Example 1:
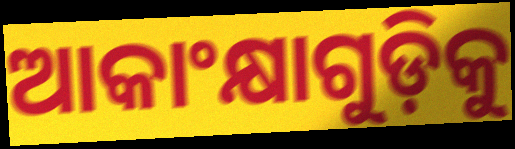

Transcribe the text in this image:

ଆକାଂକ୍ଷାଗୁଡ଼ିକୁ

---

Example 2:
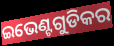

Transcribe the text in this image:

ଇଭେଣ୍ଟଗୁଡିକର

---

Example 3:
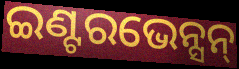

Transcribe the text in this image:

ଇଣ୍ଟରଭେନ୍ସନ୍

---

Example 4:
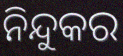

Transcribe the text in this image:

ନିନ୍ଦୁକର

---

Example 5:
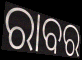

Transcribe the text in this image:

ରାବର